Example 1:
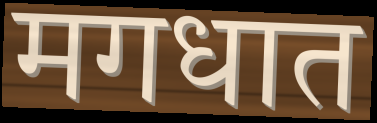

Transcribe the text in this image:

मगधात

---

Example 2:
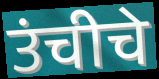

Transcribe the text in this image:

उंचीचे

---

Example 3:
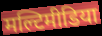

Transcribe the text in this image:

मल्टिमीडिया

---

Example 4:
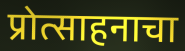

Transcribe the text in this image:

प्रोत्साहनाचा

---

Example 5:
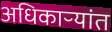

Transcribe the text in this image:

अधिकाऱ्यांत